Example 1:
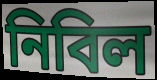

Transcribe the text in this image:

নিবিল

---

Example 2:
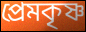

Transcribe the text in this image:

প্রেমকৃষ্ণ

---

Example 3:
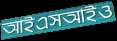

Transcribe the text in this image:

আইএসআইও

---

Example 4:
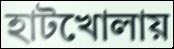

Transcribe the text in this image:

হাটখোলায়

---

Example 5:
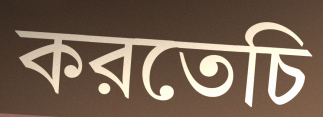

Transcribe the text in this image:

করতেচি